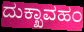
ದುಕ್ಖಾವಹಂ